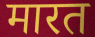
मारत